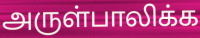
அருள்பாலிக்க